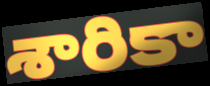
శారికా